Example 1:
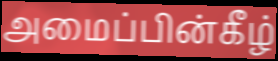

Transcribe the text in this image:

அமைப்பின்கீழ்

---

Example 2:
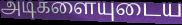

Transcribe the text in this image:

அடிகளையுடைய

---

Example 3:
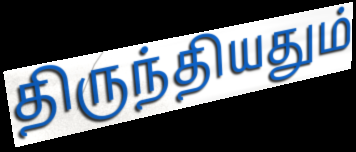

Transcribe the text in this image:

திருந்தியதும்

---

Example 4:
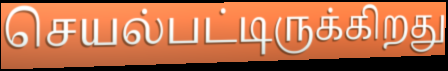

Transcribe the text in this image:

செயல்பட்டிருக்கிறது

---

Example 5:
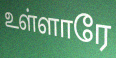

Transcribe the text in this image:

உள்ளாரே